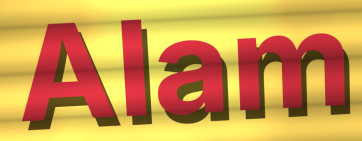
Alam